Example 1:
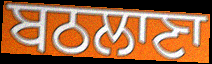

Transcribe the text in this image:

ਬਠਲਾਣਾ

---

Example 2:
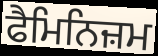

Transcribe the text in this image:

ਫੈਮਿਨਿਜ਼ਮ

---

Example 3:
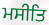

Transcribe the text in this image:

ਮਸੀਤਿ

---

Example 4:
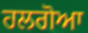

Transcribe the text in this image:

ਹਲਗੋਆ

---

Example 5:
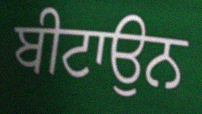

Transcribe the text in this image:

ਬੀਟਾਉਨ